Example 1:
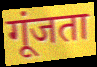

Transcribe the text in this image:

गूंजता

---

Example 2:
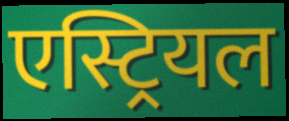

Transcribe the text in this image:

एस्ट्रियल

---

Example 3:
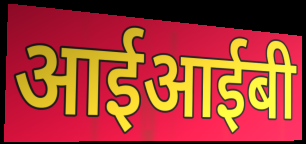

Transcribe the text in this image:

आईआईबी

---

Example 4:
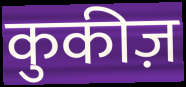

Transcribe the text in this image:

कुकीज़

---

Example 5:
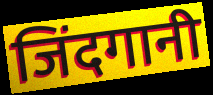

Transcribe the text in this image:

जिंदगानी